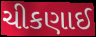
ચીકણાઈ